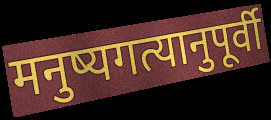
मनुष्यगत्यानुपूर्वी